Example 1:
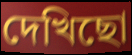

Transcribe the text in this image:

দেখিছো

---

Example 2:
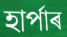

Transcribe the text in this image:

হাৰ্পাৰ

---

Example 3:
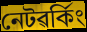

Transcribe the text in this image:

নেটৱৰ্কিং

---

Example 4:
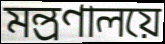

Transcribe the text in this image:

মন্ত্ৰণালয়ে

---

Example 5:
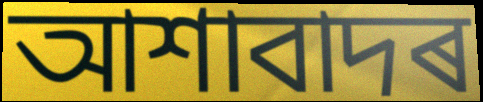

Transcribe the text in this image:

আশাবাদৰ